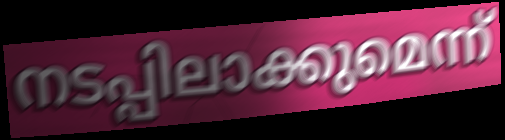
നടപ്പിലാക്കുമെന്ന്